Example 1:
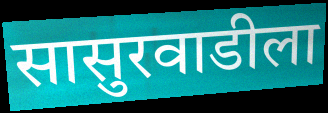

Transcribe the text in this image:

सासुरवाडीला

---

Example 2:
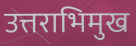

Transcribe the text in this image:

उत्तराभिमुख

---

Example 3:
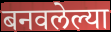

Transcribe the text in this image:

बनवलेल्या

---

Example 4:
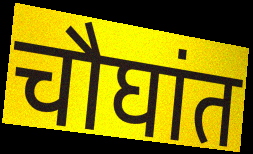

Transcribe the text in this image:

चौघांत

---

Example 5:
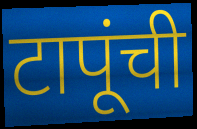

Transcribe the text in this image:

टापूंची